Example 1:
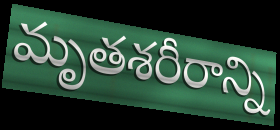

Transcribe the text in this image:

మృతశరీరాన్ని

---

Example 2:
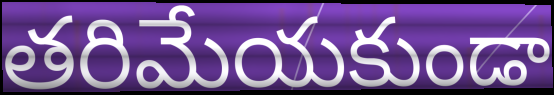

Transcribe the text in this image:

తరిమేయకుండా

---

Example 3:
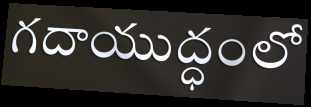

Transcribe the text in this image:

గదాయుద్ధంలో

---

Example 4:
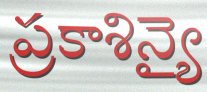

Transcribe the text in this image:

ప్రకాశిన్యై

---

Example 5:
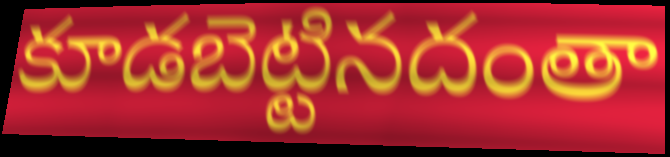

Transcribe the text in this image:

కూడబెట్టినదంతా